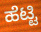
ಹೆಟ್ಟಿ